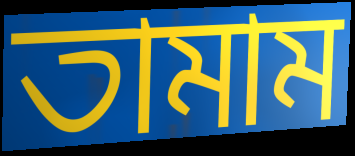
তামাম